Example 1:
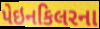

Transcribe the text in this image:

પેઇનકિલરના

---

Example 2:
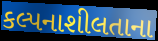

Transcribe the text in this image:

કલ્પનાશીલતાના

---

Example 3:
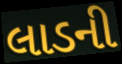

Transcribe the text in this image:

લાડની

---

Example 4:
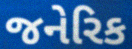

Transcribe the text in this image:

જનેરિક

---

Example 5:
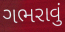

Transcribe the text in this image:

ગભરાવું